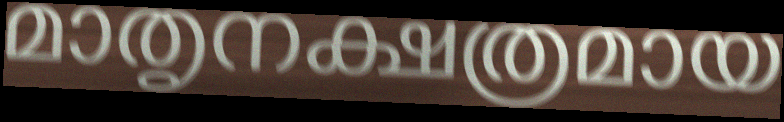
മാതൃനക്ഷത്രമായ